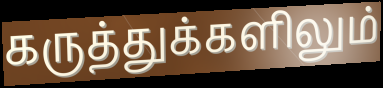
கருத்துக்களிலும்